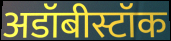
अडॉबीस्टॉक